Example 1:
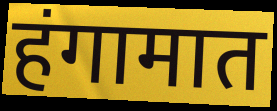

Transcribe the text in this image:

हंगामात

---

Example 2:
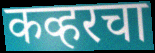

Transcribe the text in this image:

कव्हरचा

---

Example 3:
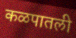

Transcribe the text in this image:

कळपातली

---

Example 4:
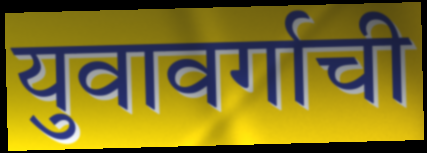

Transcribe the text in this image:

युवावर्गाची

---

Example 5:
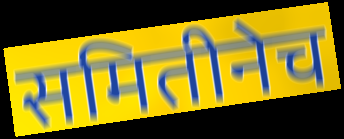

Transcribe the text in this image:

समितीनेच